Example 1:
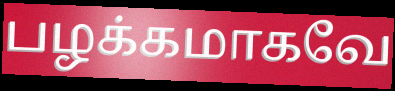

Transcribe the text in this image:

பழக்கமாகவே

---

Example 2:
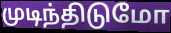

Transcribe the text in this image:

முடிந்திடுமோ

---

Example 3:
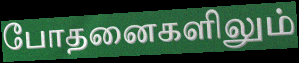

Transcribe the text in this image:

போதனைகளிலும்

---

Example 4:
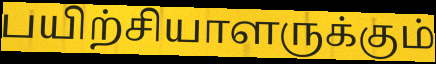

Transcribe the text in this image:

பயிற்சியாளருக்கும்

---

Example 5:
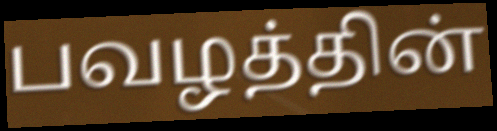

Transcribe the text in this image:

பவழத்தின்